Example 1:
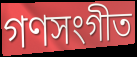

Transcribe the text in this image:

গণসংগীত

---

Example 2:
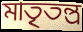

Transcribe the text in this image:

মাতৃতন্ত্র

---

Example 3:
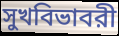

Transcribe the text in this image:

সুখবিভাবরী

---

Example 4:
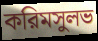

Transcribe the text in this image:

করিমসুলভ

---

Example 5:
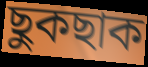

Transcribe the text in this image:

ছুকছাক